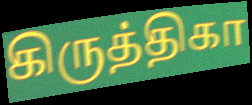
கிருத்திகா